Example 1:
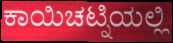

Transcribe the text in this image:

ಕಾಯಿಚಟ್ನಿಯಲ್ಲಿ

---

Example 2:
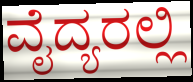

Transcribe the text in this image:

ವೈದ್ಯರಲ್ಲಿ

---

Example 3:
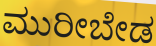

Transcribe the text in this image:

ಮುರೀಬೇಡ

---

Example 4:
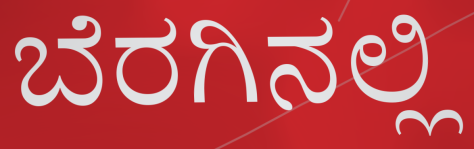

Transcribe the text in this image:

ಬೆರಗಿನಲ್ಲಿ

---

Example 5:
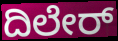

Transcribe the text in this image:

ದಿಲೇರ್